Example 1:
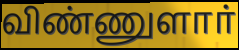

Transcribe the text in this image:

விண்ணுளார்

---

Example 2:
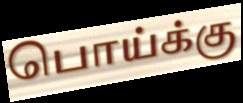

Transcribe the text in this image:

பொய்க்கு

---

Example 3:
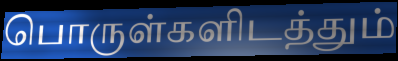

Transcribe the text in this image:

பொருள்களிடத்தும்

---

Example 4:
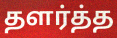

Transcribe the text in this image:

தளர்த்த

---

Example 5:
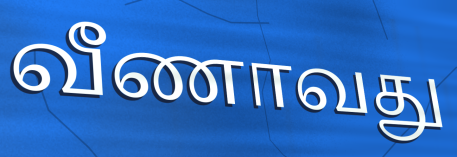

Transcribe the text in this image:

வீணாவது